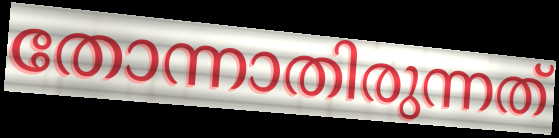
തോന്നാതിരുന്നത്